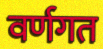
वर्णगत